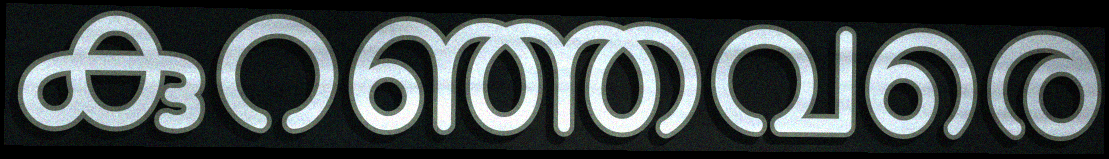
കുറഞ്ഞവരെ